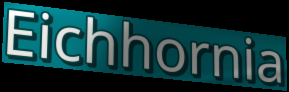
Eichhornia